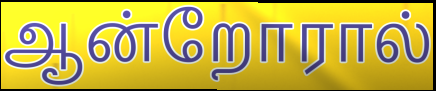
ஆன்றோரால்